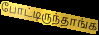
போட்டிருந்தாங்க